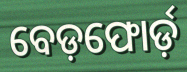
ବେଡ଼ଫୋର୍ଡ଼